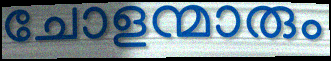
ചോളന്മാരും